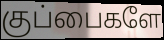
குப்பைகளே